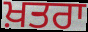
ਖ਼ਤਰਾ